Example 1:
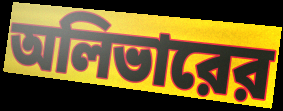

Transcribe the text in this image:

অলিভারের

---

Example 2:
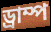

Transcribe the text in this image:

ড্রাম্প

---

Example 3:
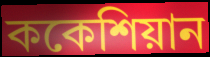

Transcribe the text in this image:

ককেশিয়ান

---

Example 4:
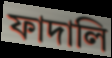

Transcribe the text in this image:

ফাদালি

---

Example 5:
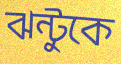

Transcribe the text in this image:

ঝন্টুকে